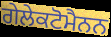
ਗੇਲੇਕਟੋਮੈਨਨ